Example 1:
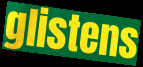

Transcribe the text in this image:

glistens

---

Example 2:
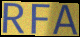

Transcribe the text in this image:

RFA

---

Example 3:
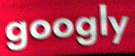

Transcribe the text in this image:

googly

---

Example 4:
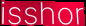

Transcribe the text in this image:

isshor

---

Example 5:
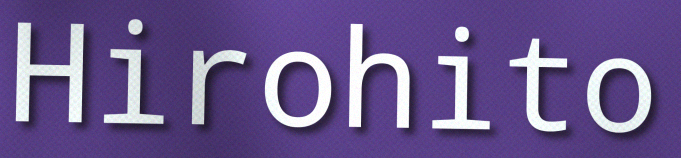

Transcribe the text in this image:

Hirohito